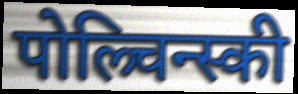
पोल्चिन्स्की